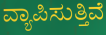
ವ್ಯಾಪಿಸುತ್ತಿವೆ